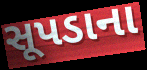
સૂપડાના